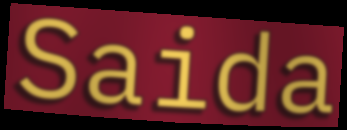
Saida